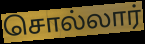
சொல்லார்